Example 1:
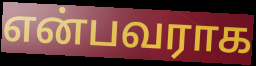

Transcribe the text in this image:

என்பவராக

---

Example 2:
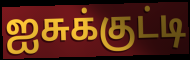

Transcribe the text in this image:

ஐசுக்குட்டி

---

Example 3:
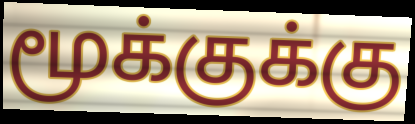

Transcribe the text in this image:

மூக்குக்கு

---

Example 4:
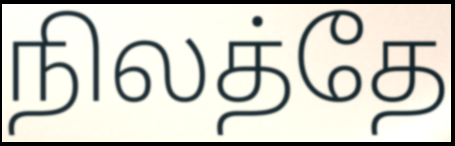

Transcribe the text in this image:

நிலத்தே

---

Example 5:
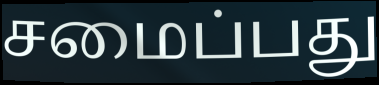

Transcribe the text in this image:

சமைப்பது